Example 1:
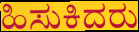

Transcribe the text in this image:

ಹಿಸುಕಿದರು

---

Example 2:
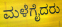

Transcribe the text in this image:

ಮಳೆಗೈದರು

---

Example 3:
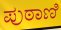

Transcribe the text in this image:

ಪುಠಾಣಿ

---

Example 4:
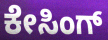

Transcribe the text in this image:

ಕೇಸಿಂಗ್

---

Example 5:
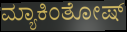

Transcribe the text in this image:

ಮ್ಯಾಕಿಂತೋಷ್